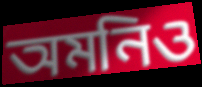
অমনিও